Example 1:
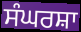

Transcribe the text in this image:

ਸੰਘਰਸ਼ਾ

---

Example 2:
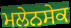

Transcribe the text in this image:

ਮਲੇਨਸੇਕ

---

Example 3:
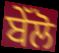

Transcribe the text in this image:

ਬੇੱਲੋ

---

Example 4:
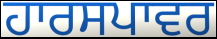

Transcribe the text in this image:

ਹਾਰਸਪਾਵਰ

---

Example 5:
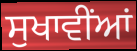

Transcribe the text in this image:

ਸੁਖਾਵੀਂਆਂ